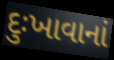
દુઃખાવાનાં